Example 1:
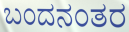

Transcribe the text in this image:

ಬಂದನಂತರ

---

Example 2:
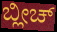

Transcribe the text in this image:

ಬ್ಲೀಚ್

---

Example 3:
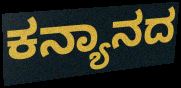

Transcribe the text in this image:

ಕನ್ಯಾನದ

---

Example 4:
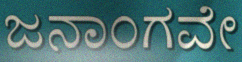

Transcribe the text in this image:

ಜನಾಂಗವೇ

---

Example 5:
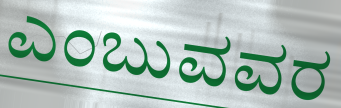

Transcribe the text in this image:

ಎಂಬುವವರ